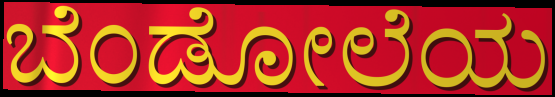
ಬೆಂಡೋಲೆಯ